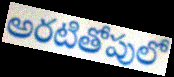
అరటితోపులో